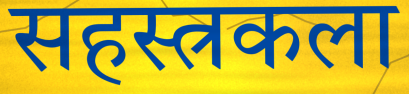
सहस्त्रकला